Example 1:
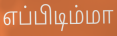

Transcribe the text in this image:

எப்பிடிம்மா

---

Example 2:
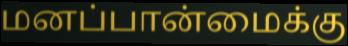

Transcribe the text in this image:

மனப்பான்மைக்கு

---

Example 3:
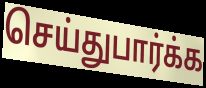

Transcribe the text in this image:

செய்துபார்க்க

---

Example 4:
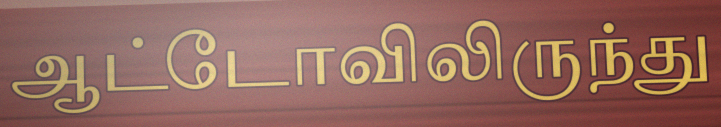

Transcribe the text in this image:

ஆட்டோவிலிருந்து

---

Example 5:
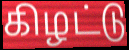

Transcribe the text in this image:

கிழட்டு